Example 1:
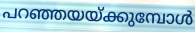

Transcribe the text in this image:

പറഞ്ഞയയ്ക്കുമ്പോൾ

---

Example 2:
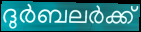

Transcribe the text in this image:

ദുർബലർക്ക്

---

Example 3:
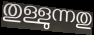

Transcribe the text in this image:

തുള്ളുന്നതു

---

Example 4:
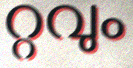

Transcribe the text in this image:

റ്റവും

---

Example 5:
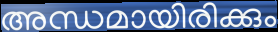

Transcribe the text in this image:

അന്ധമായിരിക്കും